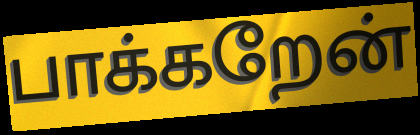
பாக்கறேன்